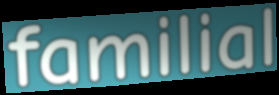
familial